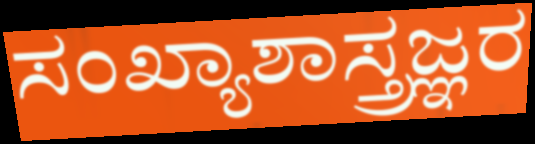
ಸಂಖ್ಯಾಶಾಸ್ತ್ರಜ್ಞರ